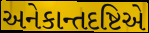
અનેકાન્તદષ્ટિએ